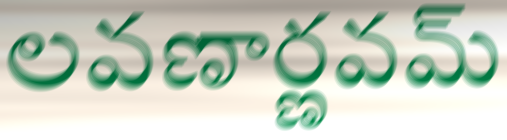
లవణార్ణవమ్